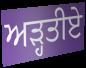
ਅੜ੍ਹਤੀਏ